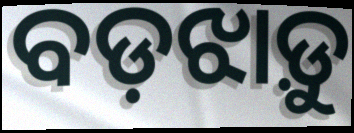
ବଡ଼ଝାଡ଼ୁ